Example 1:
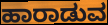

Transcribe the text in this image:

ಹಾರಾಡುವ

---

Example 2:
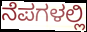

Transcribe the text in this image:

ನೆಪಗಳಲ್ಲಿ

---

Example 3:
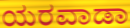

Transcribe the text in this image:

ಯರವಾಡಾ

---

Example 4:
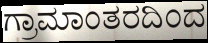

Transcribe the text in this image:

ಗ್ರಾಮಾಂತರದಿಂದ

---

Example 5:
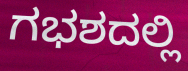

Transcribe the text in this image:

ಗಭಶದಲ್ಲಿ